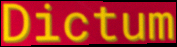
Dictum